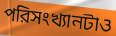
পরিসংখ্যানটাও